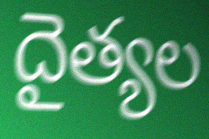
దైత్యల